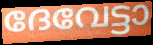
ദേവേട്ടാ